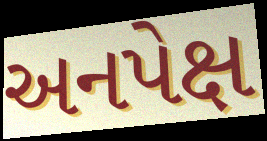
અનપેક્ષ